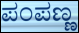
ಪಂಪಣ್ಣ